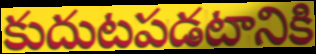
కుదుటపడటానికి